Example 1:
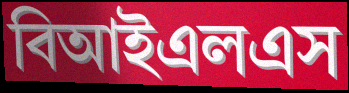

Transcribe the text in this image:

বিআইএলএস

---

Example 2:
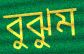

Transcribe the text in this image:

বুঝুম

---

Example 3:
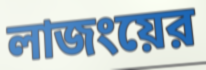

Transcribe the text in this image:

লাজংয়ের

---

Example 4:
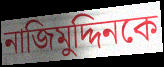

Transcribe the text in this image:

নাজিমুদ্দিনকে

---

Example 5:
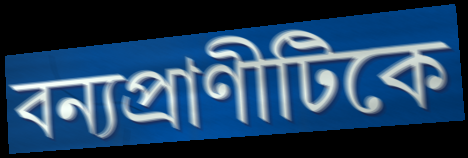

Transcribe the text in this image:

বন্যপ্রাণীটিকে